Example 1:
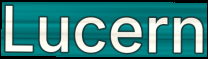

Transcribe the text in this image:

Lucern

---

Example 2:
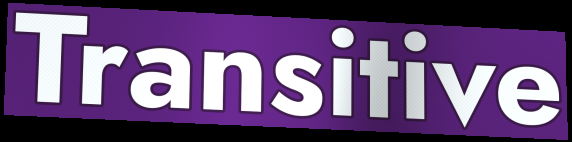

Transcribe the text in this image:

Transitive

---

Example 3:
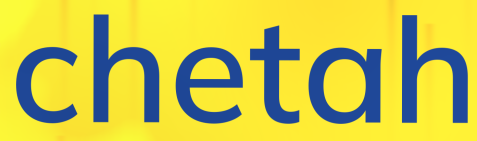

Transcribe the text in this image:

chetah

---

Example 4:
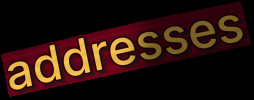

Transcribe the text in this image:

addresses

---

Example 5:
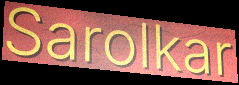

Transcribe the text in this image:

Sarolkar